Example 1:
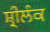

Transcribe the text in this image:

ਸ਼੍ਰੀਲੰਕ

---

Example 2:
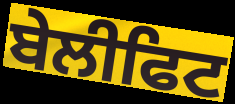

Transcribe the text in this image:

ਬੇਲੀਫਿਟ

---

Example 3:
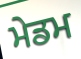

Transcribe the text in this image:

ਮੇਡਮ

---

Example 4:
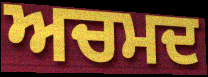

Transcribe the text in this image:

ਅਚਮਦ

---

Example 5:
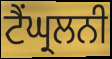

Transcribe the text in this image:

ਟੈਂਘ੍ਰਲਨੀ